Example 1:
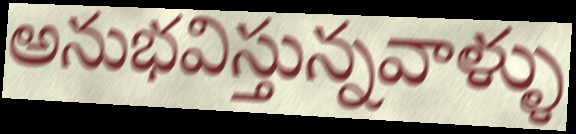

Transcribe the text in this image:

అనుభవిస్తున్నవాళ్ళు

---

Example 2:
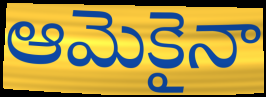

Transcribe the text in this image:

ఆమెకైనా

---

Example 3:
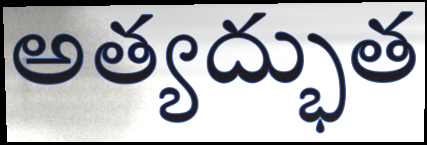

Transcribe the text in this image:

అత్యద్భుత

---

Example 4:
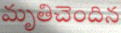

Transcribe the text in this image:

మృతిచెందిన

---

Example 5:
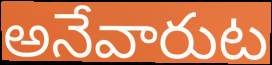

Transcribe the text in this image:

అనేవారుట